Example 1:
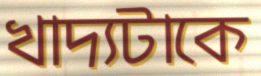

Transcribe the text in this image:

খাদ্যটাকে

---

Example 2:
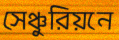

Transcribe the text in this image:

সেঞ্চুরিয়নে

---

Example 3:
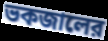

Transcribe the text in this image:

ভকজালের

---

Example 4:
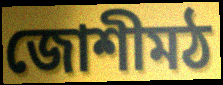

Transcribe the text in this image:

জোশীমঠ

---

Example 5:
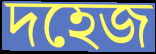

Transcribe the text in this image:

দহেজ